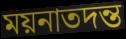
ময়নাতদন্ত